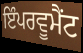
ਇੰਪਰਵੂਮੈਂਟ